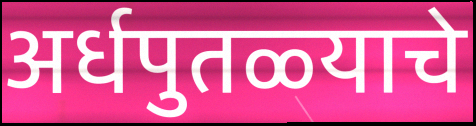
अर्धपुतळ्याचे